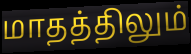
மாதத்திலும்